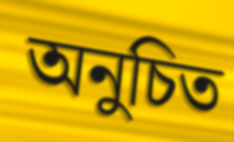
অনুচিত